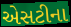
એસટીના